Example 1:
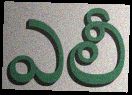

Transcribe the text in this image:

ఎలీ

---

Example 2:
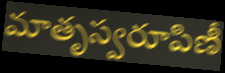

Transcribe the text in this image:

మాతృస్వరూపిణీ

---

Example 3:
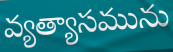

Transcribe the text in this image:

వ్యత్యాసమును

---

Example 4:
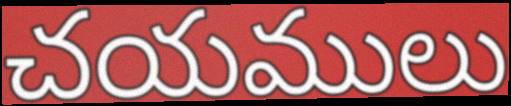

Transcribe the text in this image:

చయములు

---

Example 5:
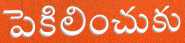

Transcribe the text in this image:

పెకిలించుకు